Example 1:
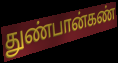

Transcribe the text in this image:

துண்பான்கண்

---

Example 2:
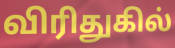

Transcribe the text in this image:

விரிதுகில்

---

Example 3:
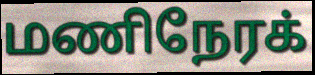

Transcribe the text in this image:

மணிநேரக்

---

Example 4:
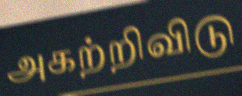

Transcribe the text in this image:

அகற்றிவிடு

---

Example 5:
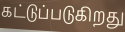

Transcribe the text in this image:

கட்டுப்படுகிறது